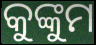
କୁଙ୍କୁମ